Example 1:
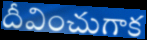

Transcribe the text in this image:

దీవించుగాక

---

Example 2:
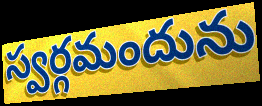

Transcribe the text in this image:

స్వర్గమందును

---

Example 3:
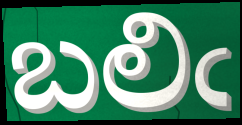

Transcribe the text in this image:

బలిఁ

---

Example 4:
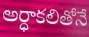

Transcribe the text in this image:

అర్ధాకలితోనే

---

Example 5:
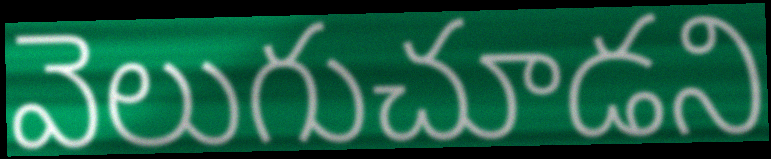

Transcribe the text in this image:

వెలుగుచూడని